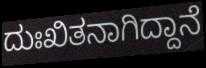
ದುಃಖಿತನಾಗಿದ್ದಾನೆ